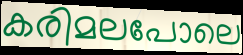
കരിമലപോലെ